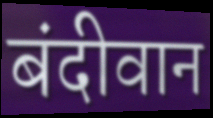
बंदीवान